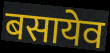
बसायेव